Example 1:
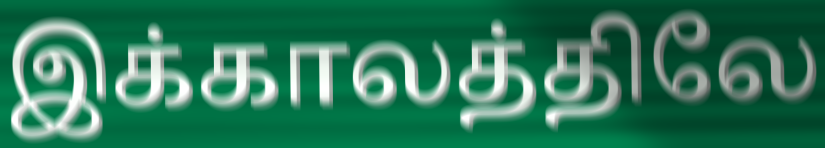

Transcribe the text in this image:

இக்காலத்திலே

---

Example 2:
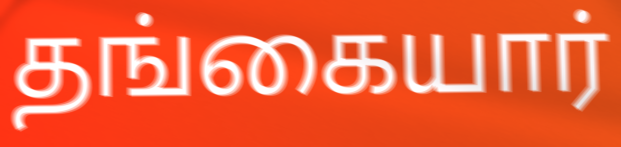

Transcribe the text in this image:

தங்கையார்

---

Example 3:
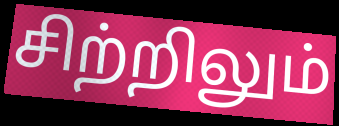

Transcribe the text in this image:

சிற்றிலும்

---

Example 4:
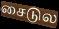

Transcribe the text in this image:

சைடுல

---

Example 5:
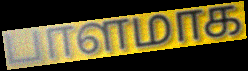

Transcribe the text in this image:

பாளமாக